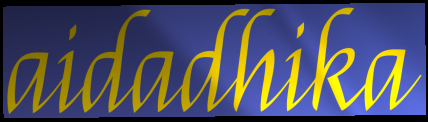
aidadhika